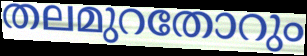
തലമുറതോറും